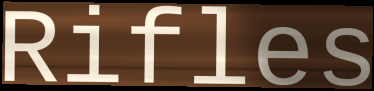
Rifles